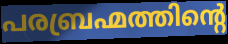
പരബ്രഹ്മത്തിന്റെ